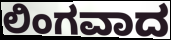
ಲಿಂಗವಾದ